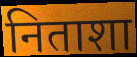
निताशा